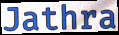
Jathra